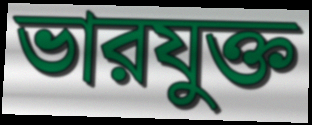
ভারযুক্ত